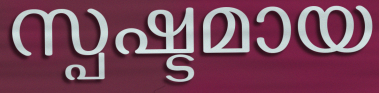
സ്പഷ്ടമായ